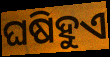
ଘଷିହୁଏ